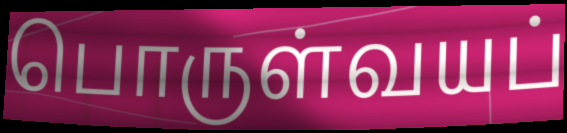
பொருள்வயப்